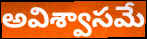
అవిశ్వాసమే